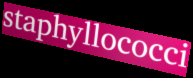
staphyllococci